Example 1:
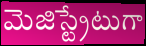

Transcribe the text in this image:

మెజిస్ట్రేటుగా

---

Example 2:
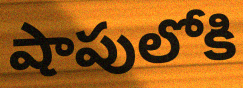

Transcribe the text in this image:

షాపులోకి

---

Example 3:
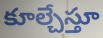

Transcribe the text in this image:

కూల్చేస్తూ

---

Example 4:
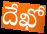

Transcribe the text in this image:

దేఖో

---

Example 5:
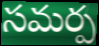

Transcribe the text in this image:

సమర్ప